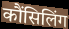
कौंसिलिंग